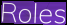
Roles